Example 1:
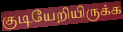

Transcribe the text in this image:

குடியேறியிருக்க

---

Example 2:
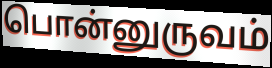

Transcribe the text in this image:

பொன்னுருவம்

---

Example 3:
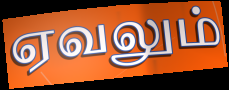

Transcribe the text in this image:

ஏவலும்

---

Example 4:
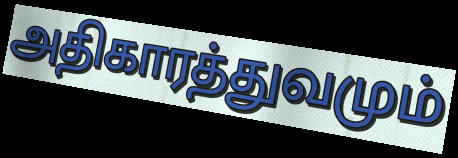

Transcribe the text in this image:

அதிகாரத்துவமும்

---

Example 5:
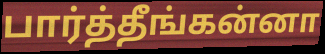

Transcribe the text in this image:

பார்த்தீங்கன்னா